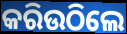
କରିଉଠିଲେ